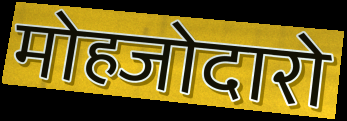
मोहजोदारो